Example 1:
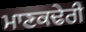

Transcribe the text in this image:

ਮਾਣਕਢੇਰੀ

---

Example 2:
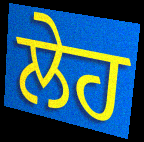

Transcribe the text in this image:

ਲੇਹ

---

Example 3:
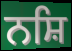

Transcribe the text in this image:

ਨਸ਼ਿ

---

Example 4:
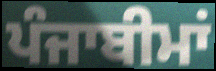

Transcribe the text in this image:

ਪੰਜਾਬੀਮਾਂ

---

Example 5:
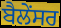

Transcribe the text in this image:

ਬੈਲੇਂਸਰ